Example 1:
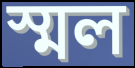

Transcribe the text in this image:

স্মল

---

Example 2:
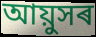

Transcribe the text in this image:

আয়ুসৰ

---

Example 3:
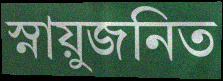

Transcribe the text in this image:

স্নায়ুজনিত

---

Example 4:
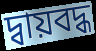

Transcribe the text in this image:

দ্বায়বদ্ধ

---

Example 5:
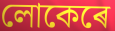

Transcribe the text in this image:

লোকেৰে